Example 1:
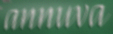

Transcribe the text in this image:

annuva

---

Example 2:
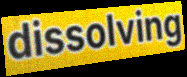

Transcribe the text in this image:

dissolving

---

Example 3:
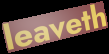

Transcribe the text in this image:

leaveth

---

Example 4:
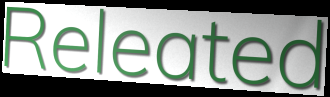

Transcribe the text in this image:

Releated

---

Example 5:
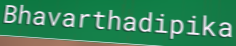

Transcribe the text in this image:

Bhavarthadipika